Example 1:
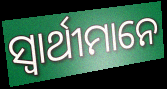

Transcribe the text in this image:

ସ୍ଵାର୍ଥୀମାନେ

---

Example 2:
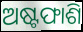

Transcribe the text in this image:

ଅଷ୍ଟଫାଶି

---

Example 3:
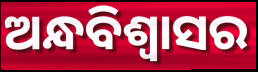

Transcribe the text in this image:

ଅନ୍ଧବିଶ୍ୱାସର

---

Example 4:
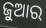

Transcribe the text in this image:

ଜୁଆର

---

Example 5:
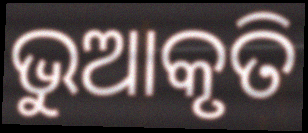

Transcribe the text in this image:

ଭୁଆକୃତି